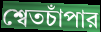
শ্বেতচাঁপার